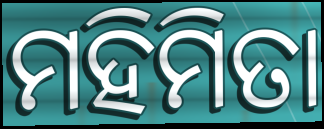
ମହିମିତା